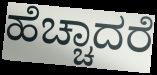
ಹೆಚ್ಚಾದರೆ